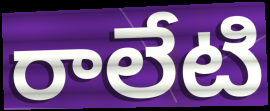
రాలేటి